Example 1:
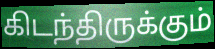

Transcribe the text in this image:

கிடந்திருக்கும்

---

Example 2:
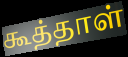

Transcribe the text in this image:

கூத்தாள்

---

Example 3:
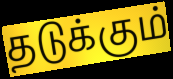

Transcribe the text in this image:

தடுக்கும்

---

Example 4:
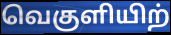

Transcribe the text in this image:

வெகுளியிற்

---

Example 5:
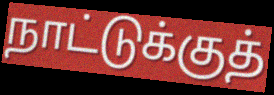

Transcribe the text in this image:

நாட்டுக்குத்